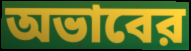
অভাবের